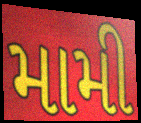
મામી